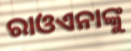
ରାଓଏନାଙ୍କୁ